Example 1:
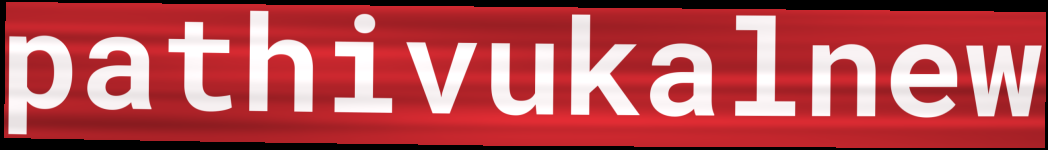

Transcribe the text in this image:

pathivukalnew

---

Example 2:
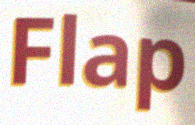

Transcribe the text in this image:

Flap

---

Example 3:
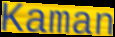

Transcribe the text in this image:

Kaman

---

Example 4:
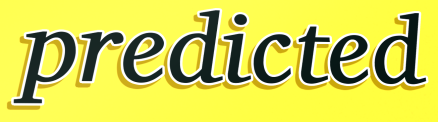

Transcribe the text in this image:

predicted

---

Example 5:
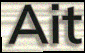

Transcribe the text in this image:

Ait